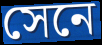
সেনে